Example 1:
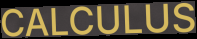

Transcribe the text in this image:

CALCULUS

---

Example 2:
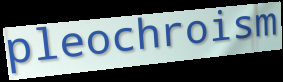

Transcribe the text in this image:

pleochroism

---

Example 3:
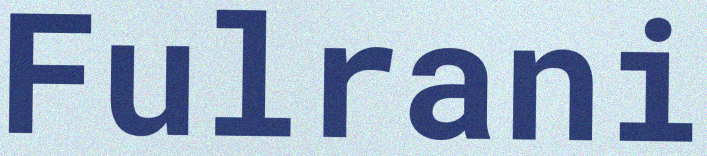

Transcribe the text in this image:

Fulrani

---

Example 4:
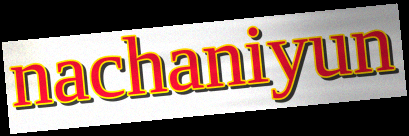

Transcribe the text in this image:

nachaniyun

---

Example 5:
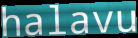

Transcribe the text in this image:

halavu